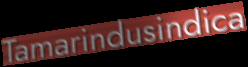
Tamarindusindica